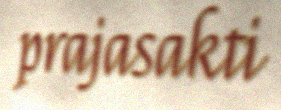
prajasakti